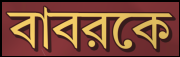
বাবরকে